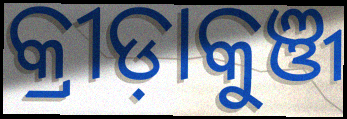
କ୍ରୀଡ଼ାକୁଞ୍ଜ